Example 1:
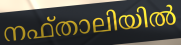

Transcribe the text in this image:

നഫ്താലിയിൽ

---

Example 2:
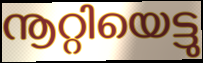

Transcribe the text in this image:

നൂറ്റിയെട്ടു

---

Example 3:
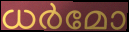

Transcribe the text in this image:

ധർമോ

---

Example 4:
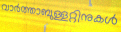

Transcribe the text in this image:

വാർത്താബുള്ളറ്റിനുകൾ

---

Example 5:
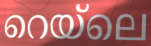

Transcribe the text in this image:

റെയ്ലെ